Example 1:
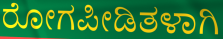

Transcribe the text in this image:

ರೋಗಪೀಡಿತಳಾಗಿ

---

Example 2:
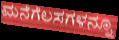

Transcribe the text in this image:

ಮನೆಗೆಲಸಗಳನ್ನೂ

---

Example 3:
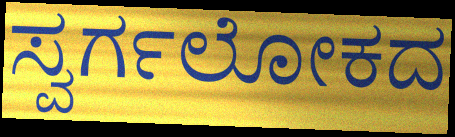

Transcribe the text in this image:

ಸ್ವರ್ಗಲೋಕದ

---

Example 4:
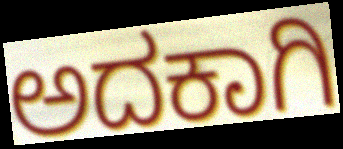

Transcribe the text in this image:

ಅದಕಾಗಿ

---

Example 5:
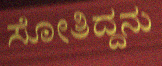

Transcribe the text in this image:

ಸೋತಿದ್ದನು